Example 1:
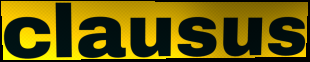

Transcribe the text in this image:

clausus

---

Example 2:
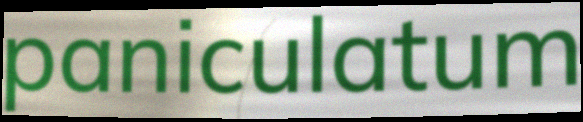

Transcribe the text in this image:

paniculatum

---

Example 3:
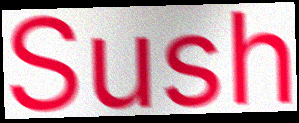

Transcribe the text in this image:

Sush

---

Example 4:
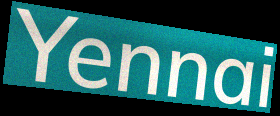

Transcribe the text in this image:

Yennai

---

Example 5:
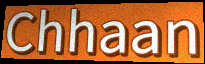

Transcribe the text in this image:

Chhaan